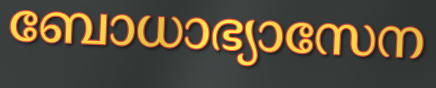
ബോധാഭ്യാസേന